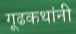
गूढकथांनी